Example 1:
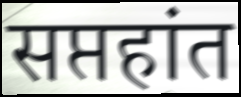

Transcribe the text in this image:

सप्तहांत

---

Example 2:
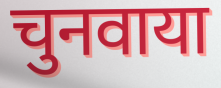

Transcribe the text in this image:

चुनवाया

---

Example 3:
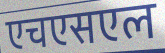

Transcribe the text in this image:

एचएसएल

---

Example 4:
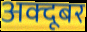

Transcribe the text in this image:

अक्दूबर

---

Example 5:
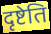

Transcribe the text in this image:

दृष्टेति